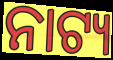
ନାଟ୍ୟ